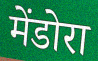
मेंडोरा